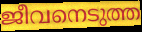
ജീവനെടുത്ത